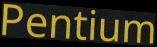
Pentium